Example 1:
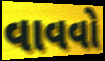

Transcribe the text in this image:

વાવવો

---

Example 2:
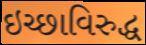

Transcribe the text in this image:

ઇચ્છાવિરુદ્ધ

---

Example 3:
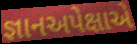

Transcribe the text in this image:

જ્ઞાનઅપેક્ષાએ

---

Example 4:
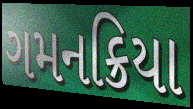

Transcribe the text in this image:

ગમનક્રિયા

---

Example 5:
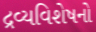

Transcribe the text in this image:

દ્રવ્યવિશેષનો